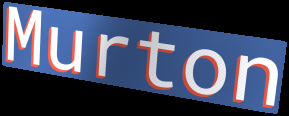
Murton